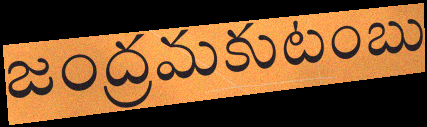
జంద్రమకుటంబు